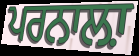
ਪਰਨਾਲ਼ਾ